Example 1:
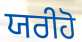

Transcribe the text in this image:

ਯਰੀਹੋ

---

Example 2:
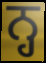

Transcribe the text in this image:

ਨ੍ਹ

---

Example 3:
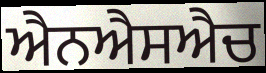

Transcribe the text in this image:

ਐਨਐਸਐਚ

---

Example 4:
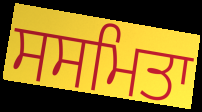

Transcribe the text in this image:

ਸਸਮਿਤਾ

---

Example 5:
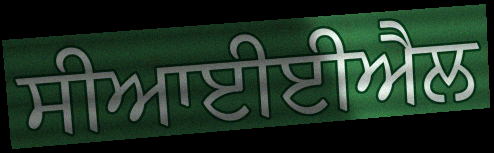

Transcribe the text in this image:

ਸੀਆਈਈਐਲ